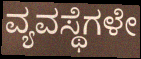
ವ್ಯವಸ್ಥೆಗಳೇ